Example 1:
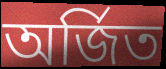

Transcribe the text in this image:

অৰ্জিত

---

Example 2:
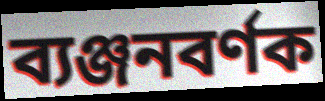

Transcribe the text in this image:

ব্যঞ্জনবৰ্ণক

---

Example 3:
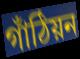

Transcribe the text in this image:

গাঁঠিয়ন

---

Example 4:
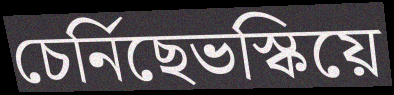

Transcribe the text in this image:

চেৰ্নিছেভস্কিয়ে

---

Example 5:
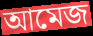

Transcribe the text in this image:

আমেজ